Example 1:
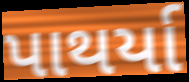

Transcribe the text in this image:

પાથર્યા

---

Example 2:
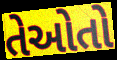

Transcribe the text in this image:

તેઓતો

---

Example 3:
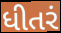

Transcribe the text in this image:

ધીતરં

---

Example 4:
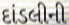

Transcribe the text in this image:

દાંડલીની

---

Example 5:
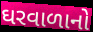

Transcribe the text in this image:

ઘરવાળાનો